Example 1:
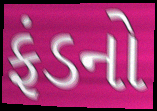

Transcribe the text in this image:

ફંડનો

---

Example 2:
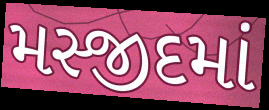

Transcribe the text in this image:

મસ્જીદમાં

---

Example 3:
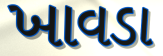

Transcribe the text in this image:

ખાવડા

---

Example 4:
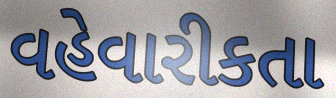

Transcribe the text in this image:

વહેવારીકતા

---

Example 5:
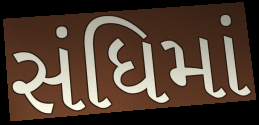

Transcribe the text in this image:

સંધિમાં